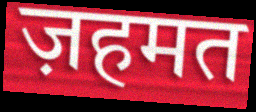
ज़हमत